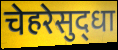
चेहरेसुद्धा